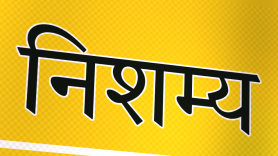
निशम्य